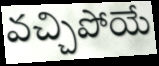
వచ్చిపోయే